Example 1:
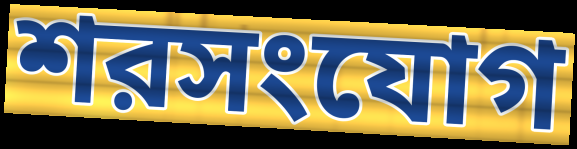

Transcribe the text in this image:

শরসংযোগ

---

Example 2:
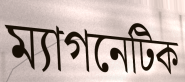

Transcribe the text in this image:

ম্যাগনেটিক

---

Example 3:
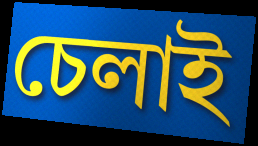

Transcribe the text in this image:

চেলাই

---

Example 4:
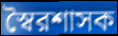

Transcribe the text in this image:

স্বৈরশাসক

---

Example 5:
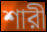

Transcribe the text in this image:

শারী